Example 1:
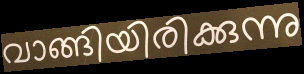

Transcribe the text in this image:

വാങ്ങിയിരിക്കുന്നു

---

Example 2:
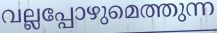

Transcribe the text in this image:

വല്ലപ്പോഴുമെത്തുന്ന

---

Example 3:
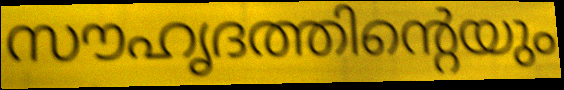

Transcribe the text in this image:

സൗഹൃദത്തിന്റെയും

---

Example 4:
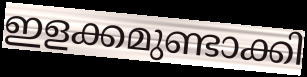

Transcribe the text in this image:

ഇളക്കമുണ്ടാക്കി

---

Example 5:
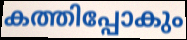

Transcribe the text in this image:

കത്തിപ്പോകും